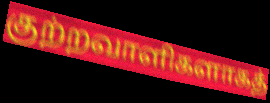
குற்றவாளிகளாகத்